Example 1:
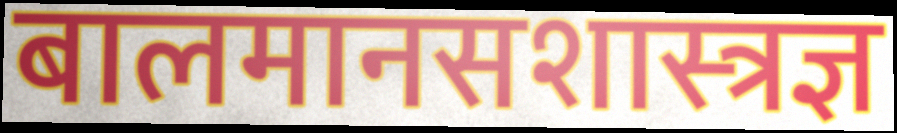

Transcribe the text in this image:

बालमानसशास्त्रज्ञ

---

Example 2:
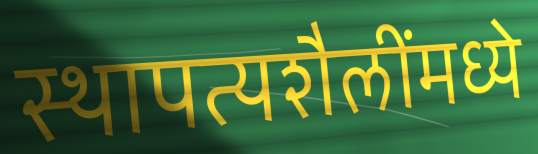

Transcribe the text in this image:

स्थापत्यशैलींमध्ये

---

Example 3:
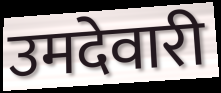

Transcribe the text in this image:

उमदेवारी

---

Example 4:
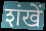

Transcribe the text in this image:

शंखें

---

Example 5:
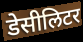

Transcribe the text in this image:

डेसीलिटर